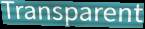
Transparent